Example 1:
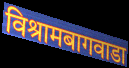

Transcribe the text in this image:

विश्रामबागवाडा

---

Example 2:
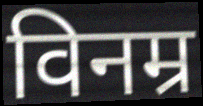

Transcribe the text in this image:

विनम्र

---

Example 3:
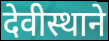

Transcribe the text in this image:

देवीस्थाने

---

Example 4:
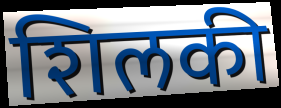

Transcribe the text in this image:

शिलकी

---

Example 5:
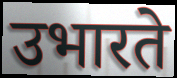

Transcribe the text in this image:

उभारते